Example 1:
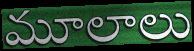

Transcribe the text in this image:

మూలాలు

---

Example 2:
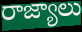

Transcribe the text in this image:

రాజ్యాలు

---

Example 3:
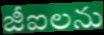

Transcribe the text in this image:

జీఐలను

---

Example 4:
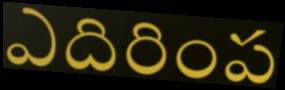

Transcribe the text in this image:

ఎదిరింప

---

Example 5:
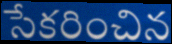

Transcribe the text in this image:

సేకరించిన